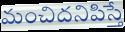
మంచిదనిపిస్తే